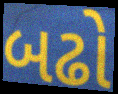
બઢો